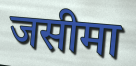
जसीमा